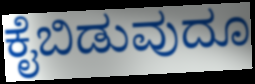
ಕೈಬಿಡುವುದೂ